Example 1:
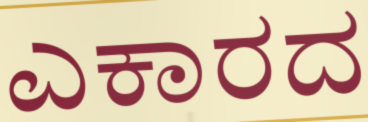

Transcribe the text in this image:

ಎಕಾರದ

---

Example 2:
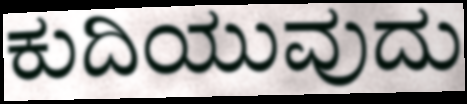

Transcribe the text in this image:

ಕುದಿಯುವುದು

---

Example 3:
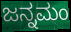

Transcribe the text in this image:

ಜನ್ನಮಂ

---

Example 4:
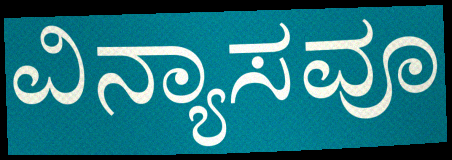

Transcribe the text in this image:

ವಿನ್ಯಾಸವೂ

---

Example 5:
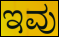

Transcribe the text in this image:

ಇವು